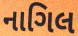
નાગિલ